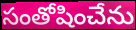
సంతోషించేను